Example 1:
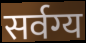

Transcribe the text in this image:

सर्वग्य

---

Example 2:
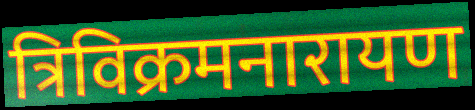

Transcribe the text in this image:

त्रिविक्रमनारायण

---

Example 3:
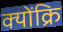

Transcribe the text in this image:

क्योंक्रि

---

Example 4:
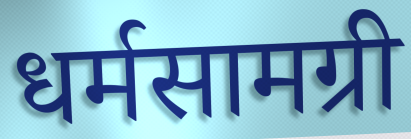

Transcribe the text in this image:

धर्मसामग्री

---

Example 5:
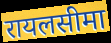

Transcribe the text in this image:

रायलसीमा